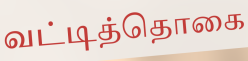
வட்டித்தொகை